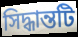
সিদ্ধান্তটি